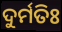
ଦୁର୍ମତିଃ